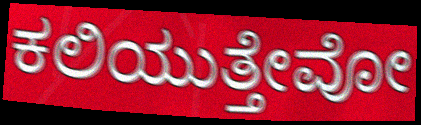
ಕಲಿಯುತ್ತೇವೋ